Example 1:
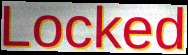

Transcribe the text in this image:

Locked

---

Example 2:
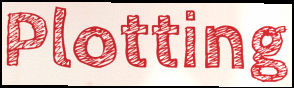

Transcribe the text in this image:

Plotting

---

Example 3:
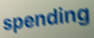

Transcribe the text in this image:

spending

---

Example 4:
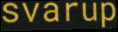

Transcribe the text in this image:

svarup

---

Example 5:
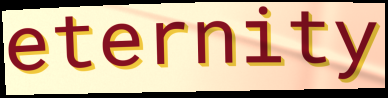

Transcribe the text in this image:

eternity